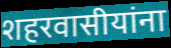
शहरवासीयांना